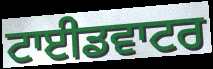
ਟਾਈਡਵਾਟਰ